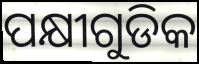
ପକ୍ଷୀଗୁଡିକ